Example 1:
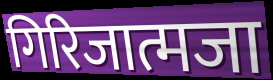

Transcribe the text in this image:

गिरिजात्मजा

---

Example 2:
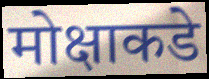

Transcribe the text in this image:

मोक्षाकडे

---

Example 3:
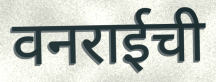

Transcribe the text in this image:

वनराईची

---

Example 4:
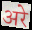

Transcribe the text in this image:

अरे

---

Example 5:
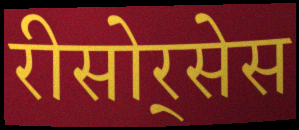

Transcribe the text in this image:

रीसोर्सेस